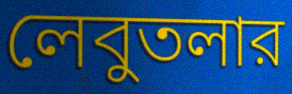
লেবুতলার